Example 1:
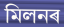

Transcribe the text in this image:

মিলনৰ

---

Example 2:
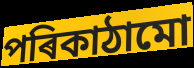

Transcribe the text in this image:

পৰিকাঠামো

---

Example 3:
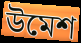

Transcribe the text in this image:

উমেশ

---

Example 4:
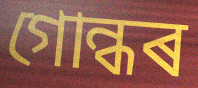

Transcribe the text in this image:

গোন্ধৰ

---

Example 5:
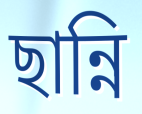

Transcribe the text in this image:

ছান্নি